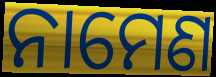
ନାମେଣ